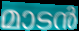
മാടൻ